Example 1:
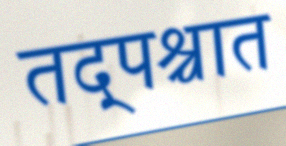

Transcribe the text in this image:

तद्पश्चात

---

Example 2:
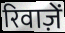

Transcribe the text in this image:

रिवाज़ें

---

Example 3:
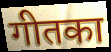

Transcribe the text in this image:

गीतका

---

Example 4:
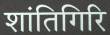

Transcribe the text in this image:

शांतिगिरि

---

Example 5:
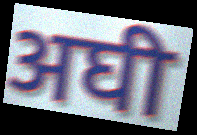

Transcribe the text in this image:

अघी